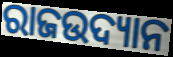
ରାଜଉଦ୍ୟାନ